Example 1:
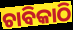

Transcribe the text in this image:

ଚାବିକାଠି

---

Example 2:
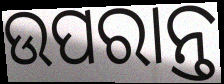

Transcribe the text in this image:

ଉପରାନ୍ତ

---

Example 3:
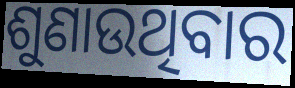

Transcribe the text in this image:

ଶୁଣାଉଥିବାର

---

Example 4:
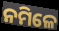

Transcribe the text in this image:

ନମିଳେ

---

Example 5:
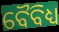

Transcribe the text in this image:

ବୈବିଧ୍ୟ